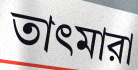
তাৎমারা